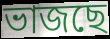
ভাজছে